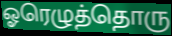
ஓரெழுத்தொரு